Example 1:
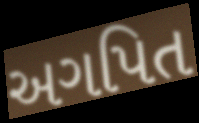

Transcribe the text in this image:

અગપિત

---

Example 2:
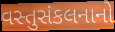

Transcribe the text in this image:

વસ્તુસંકલનાનો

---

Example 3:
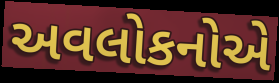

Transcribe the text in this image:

અવલોકનોએ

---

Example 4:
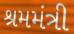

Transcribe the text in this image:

શ્રમમંત્રી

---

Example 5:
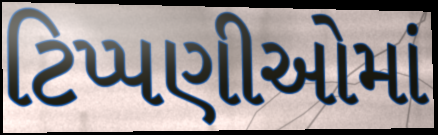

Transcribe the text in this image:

ટિપ્પણીઓમાં